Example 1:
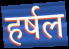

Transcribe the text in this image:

हर्षल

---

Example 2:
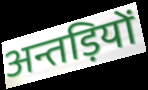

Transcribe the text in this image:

अन्तड़ियों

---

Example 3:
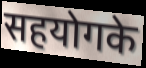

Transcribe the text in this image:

सहयोगके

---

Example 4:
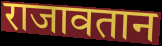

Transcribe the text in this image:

राजावतान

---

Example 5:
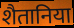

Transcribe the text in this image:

शैतानिया